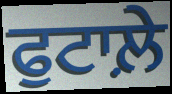
ਫੁਟਾਲ਼ੇ